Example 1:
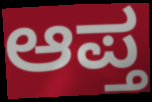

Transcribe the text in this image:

ಆಪ್ತ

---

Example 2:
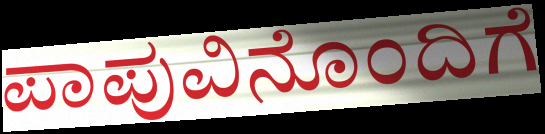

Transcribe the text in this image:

ಪಾಪುವಿನೊಂದಿಗೆ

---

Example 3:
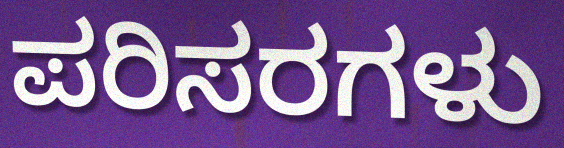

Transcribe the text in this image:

ಪರಿಸರಗಳು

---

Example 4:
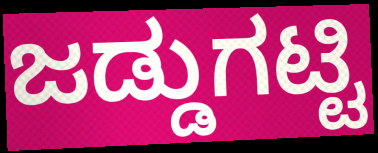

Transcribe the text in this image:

ಜಡ್ಡುಗಟ್ಟಿ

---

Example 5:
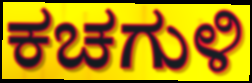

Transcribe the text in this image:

ಕಚಗುಳಿ